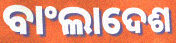
ବାଂଲାଦେଶ